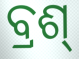
ବ୍ରଶ୍